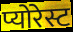
प्योरेस्ट